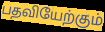
பதவியேற்கும்